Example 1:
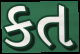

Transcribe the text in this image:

કત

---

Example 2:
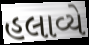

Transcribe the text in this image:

હલાવ્યે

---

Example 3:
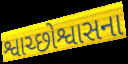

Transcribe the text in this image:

શ્વાચ્છોશ્વાસના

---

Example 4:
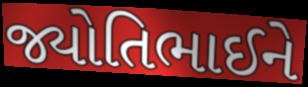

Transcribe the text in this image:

જ્યોતિભાઈને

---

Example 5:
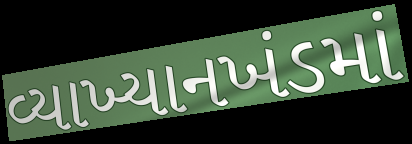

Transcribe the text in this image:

વ્યાખ્યાનખંડમાં